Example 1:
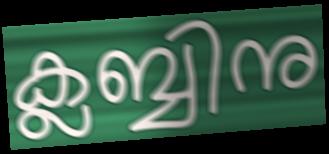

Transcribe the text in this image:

ക്ലബ്ബിനു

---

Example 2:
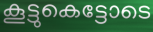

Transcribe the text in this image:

കൂട്ടുകെട്ടോടെ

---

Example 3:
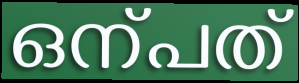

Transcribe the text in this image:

ഒന്പത്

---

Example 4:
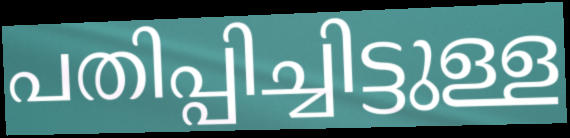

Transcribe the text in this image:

പതിപ്പിച്ചിട്ടുള്ള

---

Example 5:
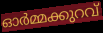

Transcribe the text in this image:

ഓർമ്മക്കുറവ്